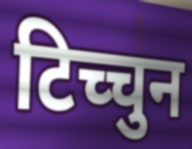
टिच्चुन